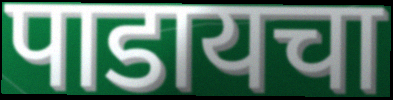
पाडायचा